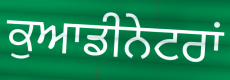
ਕੁਆਡੀਨੇਟਰਾਂ